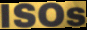
ISOs